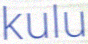
kulu